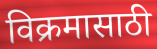
विक्रमासाठी